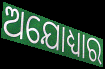
ଅଯୋଧ୍ୟାର